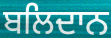
ਬਲਿਦਾਨ